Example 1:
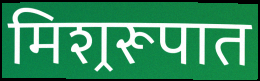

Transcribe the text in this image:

मिश्ररूपात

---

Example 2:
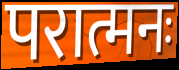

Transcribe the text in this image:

परात्मनः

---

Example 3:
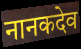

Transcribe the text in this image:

नानकदेव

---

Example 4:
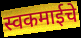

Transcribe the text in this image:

स्वकमाईचे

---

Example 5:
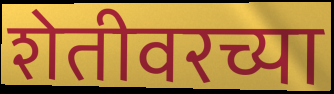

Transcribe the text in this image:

शेतीवरच्या